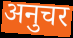
अनुचर